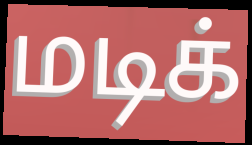
மடிக்